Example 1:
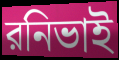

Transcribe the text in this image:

রনিভাই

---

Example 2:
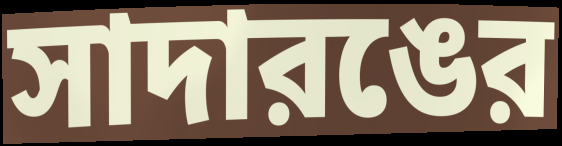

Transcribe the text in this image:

সাদারঙের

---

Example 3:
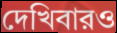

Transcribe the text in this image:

দেখিবারও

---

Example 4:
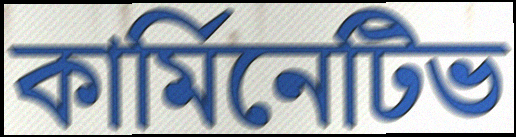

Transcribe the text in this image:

কার্মিনেটিভ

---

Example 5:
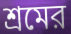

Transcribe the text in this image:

শ্রমের